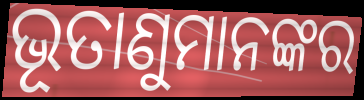
ଭୂତାଣୁମାନଙ୍କର